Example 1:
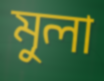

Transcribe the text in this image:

মুলা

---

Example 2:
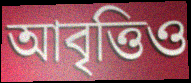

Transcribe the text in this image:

আবৃত্তিও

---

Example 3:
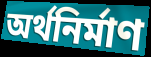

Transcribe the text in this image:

অর্থনির্মাণ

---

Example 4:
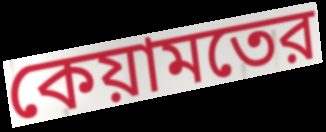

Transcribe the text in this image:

কেয়ামতের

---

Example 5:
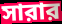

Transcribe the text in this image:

সারার